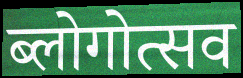
ब्लोगोत्सव